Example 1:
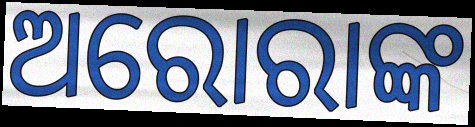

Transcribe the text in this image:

ଅରୋରାଙ୍କ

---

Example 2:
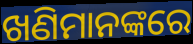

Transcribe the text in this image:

ଖଣିମାନଙ୍କରେ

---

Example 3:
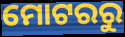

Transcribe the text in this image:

ମୋଟରରୁ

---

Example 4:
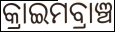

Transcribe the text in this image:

କ୍ରାଇମବ୍ରାଞ୍ଚ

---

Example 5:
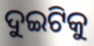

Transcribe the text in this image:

ଦୁଇଟିକୁ